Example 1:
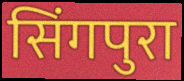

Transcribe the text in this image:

सिंगपुरा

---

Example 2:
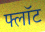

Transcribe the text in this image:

फ्लॉट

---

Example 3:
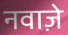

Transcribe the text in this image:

नवाज़े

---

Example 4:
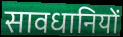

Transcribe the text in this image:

सावधानियों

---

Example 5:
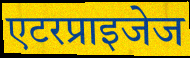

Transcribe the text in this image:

एटरप्राइजेज